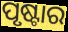
ପୃଷ୍ଟାର